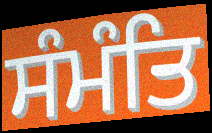
ਸੰਮੰਤਿ